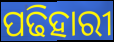
ପଢିହାରୀ